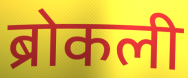
ब्रोकली